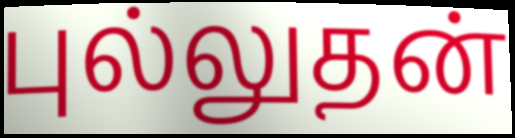
புல்லுதன்